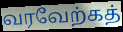
வரவேற்கத்